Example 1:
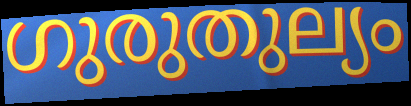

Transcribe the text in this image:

ഗുരുതുല്യം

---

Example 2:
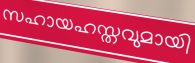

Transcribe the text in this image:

സഹായഹസ്തവുമായി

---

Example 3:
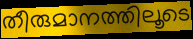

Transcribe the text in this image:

തീരുമാനത്തിലൂടെ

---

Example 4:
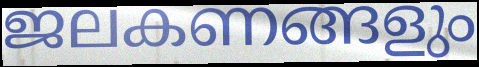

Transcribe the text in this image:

ജലകണങ്ങളും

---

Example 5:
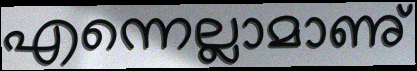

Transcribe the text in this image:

എന്നെല്ലാമാണു്